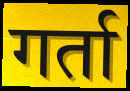
गर्ता